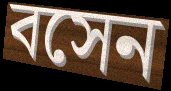
বসেন